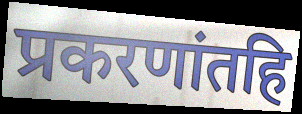
प्रकरणांतहि